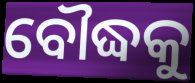
ବୌଦ୍ଧକୁ